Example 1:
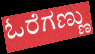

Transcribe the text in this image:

ಓರೆಗಣ್ಣು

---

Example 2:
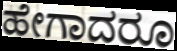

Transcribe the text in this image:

ಹೇಗಾದರೂ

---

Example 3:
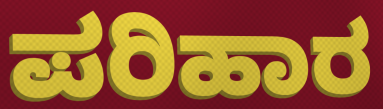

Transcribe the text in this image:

ಪರಿಹಾರ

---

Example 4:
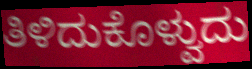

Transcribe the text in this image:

ತಿಳಿದುಕೊಳ್ವುದು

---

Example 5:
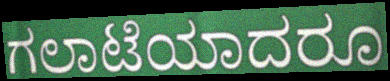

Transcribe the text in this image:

ಗಲಾಟೆಯಾದರೂ